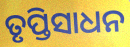
ତୃପ୍ତିସାଧନ